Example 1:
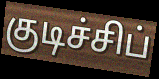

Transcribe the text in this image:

குடிச்சிப்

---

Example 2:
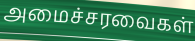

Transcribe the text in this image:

அமைச்சரவைகள்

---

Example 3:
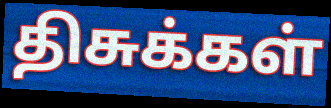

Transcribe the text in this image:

திசுக்கள்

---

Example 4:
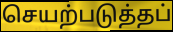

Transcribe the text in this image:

செயற்படுத்தப்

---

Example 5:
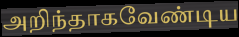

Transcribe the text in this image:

அறிந்தாகவேண்டிய